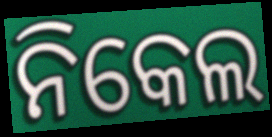
ନିକେଲ